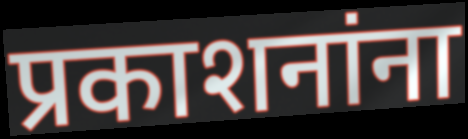
प्रकाशनांना